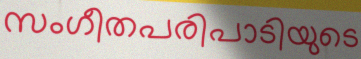
സംഗീതപരിപാടിയുടെ